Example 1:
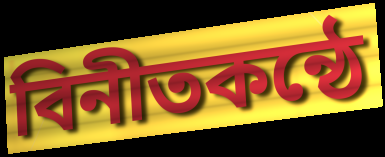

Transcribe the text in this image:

বিনীতকন্ঠে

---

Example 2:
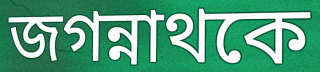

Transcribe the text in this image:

জগন্নাথকে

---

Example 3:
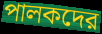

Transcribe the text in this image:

পালকদের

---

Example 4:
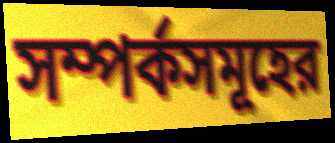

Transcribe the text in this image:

সম্পর্কসমূহের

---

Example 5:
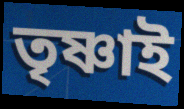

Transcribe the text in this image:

তৃষ্ণাই